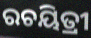
ରଚୟିତ୍ରୀ